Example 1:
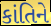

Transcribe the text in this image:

કાંતિને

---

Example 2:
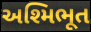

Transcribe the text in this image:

અશ્મિભૂત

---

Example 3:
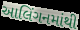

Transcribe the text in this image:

આલિંગનમાંથી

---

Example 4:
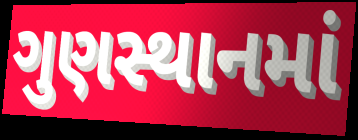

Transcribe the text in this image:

ગુણસ્થાનમાં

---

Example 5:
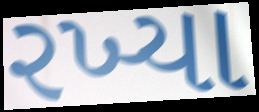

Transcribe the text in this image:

રખ્યા